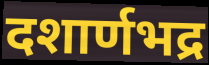
दशार्णभद्र